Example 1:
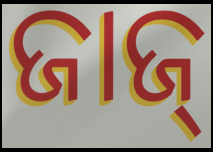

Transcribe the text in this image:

ଜାଜ୍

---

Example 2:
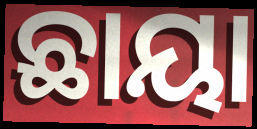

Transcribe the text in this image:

ଛାୟା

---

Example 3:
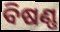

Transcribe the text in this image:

ବିଷଣ୍ଣ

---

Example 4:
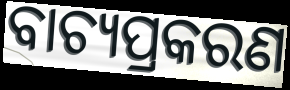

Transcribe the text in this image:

ବାଚ୍ୟପ୍ରକରଣ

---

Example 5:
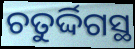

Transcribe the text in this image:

ଚତୁର୍ଦ୍ଦିଗସ୍ଥ